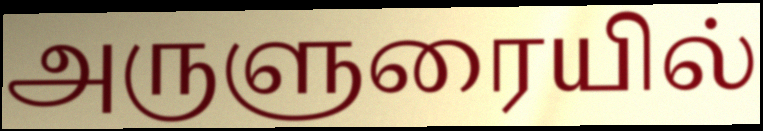
அருளுரையில்